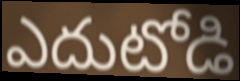
ఎదుటోడి